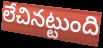
లేచినట్టుంది